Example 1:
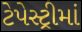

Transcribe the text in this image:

ટેપેસ્ટ્રીમાં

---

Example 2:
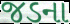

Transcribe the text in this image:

જડના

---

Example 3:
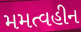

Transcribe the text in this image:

મમત્વહીન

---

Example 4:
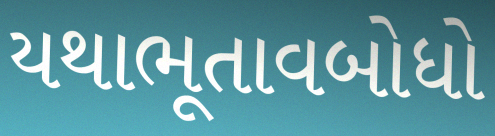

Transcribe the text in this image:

યથાભૂતાવબોધો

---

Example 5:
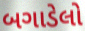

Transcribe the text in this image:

બગાડેલો